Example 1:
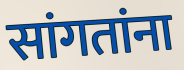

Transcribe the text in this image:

सांगतांना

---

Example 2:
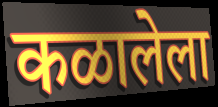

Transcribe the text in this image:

कळालेला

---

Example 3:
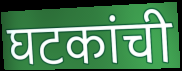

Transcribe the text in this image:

घटकांची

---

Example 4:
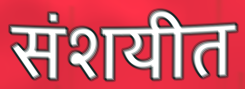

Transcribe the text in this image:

संशयीत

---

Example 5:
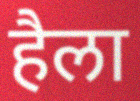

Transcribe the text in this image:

हैला